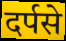
दर्पसे